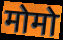
मोमो